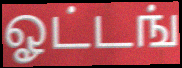
ஓட்டங்